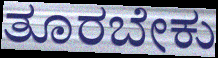
ತೂರಬೇಕು